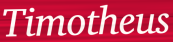
Timotheus